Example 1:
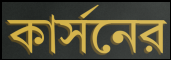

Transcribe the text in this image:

কার্সনের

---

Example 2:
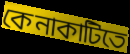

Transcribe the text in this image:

কেনাকাটিতে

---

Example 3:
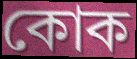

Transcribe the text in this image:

কোক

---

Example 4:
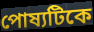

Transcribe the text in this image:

পোষ্যটিকে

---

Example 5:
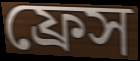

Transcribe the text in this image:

ফ্রেস